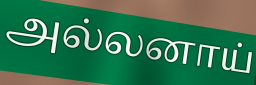
அல்லனாய்